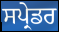
ਸਪ੍ਰੇਡਰ